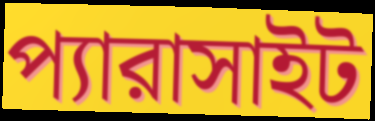
প্যারাসাইট